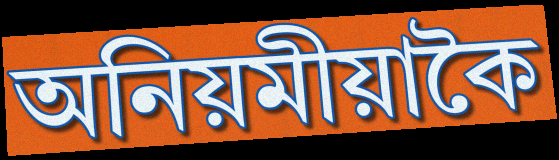
অনিয়মীয়াকৈ